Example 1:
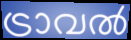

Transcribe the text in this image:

ട്രാവൽ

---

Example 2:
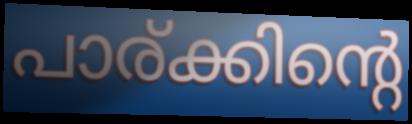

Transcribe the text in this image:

പാര്ക്കിന്റെ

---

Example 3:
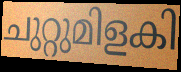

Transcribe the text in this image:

ചുറ്റുമിളകി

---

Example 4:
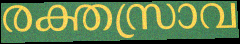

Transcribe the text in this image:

രക്തസ്രാവ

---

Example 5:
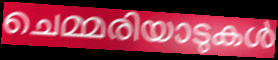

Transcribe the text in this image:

ചെമ്മരിയാടുകൾ